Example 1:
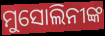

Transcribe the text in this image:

ମୁସୋଲିନୀଙ୍କ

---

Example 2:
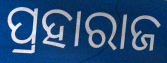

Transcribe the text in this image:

ପ୍ରହାରାଜ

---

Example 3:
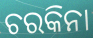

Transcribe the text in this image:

ଚରକିନା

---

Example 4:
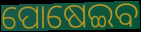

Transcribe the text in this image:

ପୋଷେଇବ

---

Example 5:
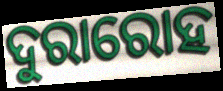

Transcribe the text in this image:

ଦୁରାରୋହ